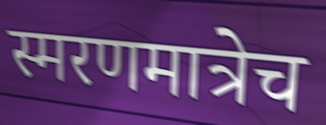
स्मरणमात्रेच